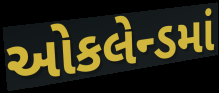
ઓકલેન્ડમાં